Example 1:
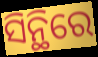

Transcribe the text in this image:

ସିନ୍ଥିରେ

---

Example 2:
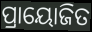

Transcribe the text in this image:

ପ୍ରାୟୋଜିତ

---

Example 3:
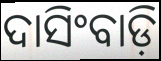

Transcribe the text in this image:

ଦାସିଂବାଡ଼ି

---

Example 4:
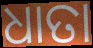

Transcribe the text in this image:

ଧାତା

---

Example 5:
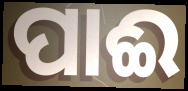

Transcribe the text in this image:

ପାଈ